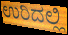
ಉರಿದಲ್ಲಿ